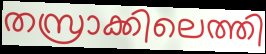
തസ്രാക്കിലെത്തി